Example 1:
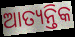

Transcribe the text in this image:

ଆତ୍ୟନ୍ତିକ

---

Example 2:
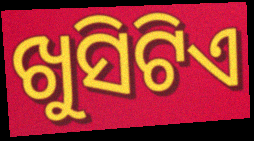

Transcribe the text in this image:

ଖୁସିଟିଏ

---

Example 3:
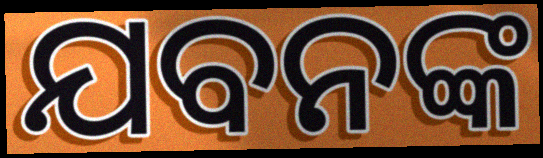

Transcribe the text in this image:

ଯବନଙ୍କ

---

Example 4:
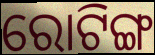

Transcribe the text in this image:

ରୋଟିଙ୍ଗ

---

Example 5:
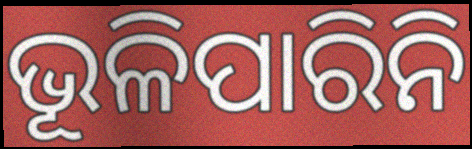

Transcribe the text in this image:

ଭୂଳିପାରିନି